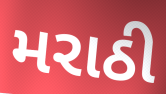
મરાઠી